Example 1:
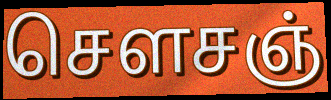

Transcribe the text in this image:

செளசஞ்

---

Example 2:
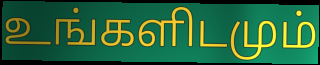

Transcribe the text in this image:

உங்களிடமும்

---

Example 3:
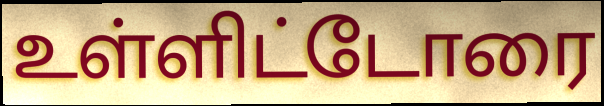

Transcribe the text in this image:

உள்ளிட்டோரை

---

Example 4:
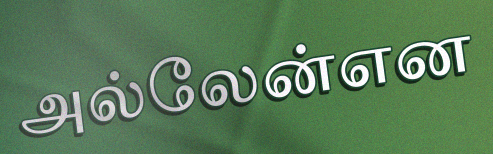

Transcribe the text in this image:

அல்லேன்என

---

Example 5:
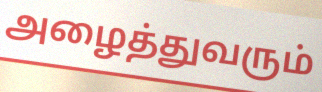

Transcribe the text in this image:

அழைத்துவரும்